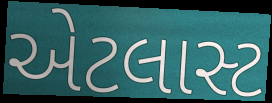
એટલાસ્ટ